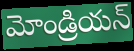
మోండ్రియన్